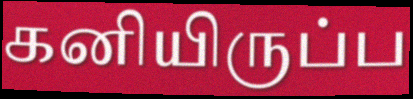
கனியிருப்ப